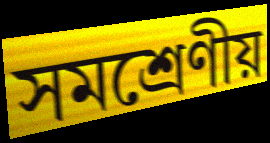
সমশ্রেণীয়